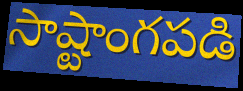
సాష్టాంగపడి